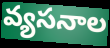
వ్యసనాల